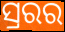
ସ୍ରରର